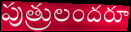
పుత్రులందరూ